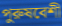
পুরুষবেশী